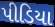
પીડિયા